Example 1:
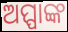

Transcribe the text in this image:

ଅପ୍ପାଙ୍କ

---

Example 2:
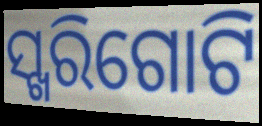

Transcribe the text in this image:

ସ୍ଖରିଗୋଟି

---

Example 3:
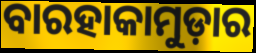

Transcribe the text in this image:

ବାରହାକାମୁଡ଼ାର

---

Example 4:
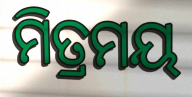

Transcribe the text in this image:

ମିତ୍ରମୟ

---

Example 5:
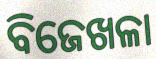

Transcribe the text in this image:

ବିଜେଖଳା